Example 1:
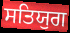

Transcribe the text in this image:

ਸਤਿਯੁਗ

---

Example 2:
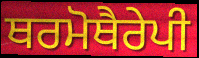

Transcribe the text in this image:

ਥਰਮੋਥੈਰੇਪੀ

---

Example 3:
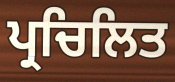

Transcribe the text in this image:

ਪ੍ਰਚਿਲਿਤ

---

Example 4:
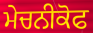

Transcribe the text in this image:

ਮੇਚਨੀਕੋਫ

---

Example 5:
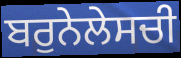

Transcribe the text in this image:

ਬਰੁਨੇਲੇਸਚੀ